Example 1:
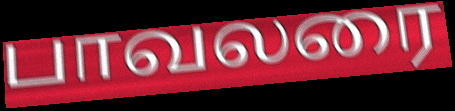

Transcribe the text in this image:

பாவலரை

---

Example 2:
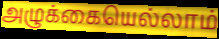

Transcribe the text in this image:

அழுக்கையெல்லாம்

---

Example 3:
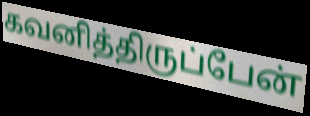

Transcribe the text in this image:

கவனித்திருப்பேன்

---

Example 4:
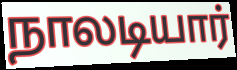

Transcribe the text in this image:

நாலடியார்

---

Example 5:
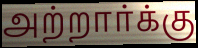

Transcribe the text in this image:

அற்றார்க்கு